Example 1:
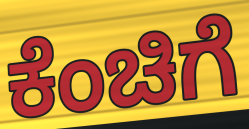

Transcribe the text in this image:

ಕೆಂಚಿಗೆ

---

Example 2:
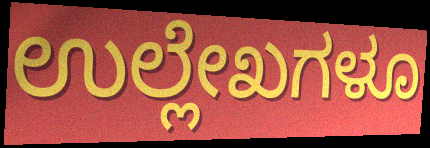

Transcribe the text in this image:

ಉಲ್ಲೇಖಗಳೂ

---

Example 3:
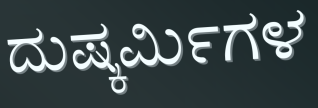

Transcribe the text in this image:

ದುಷ್ಕರ್ಮಿಗಳ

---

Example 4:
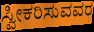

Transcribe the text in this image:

ಸ್ವೀಕರಿಸುವವರ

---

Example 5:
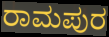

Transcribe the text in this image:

ರಾಮಪುರ